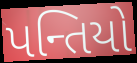
પન્તિયો